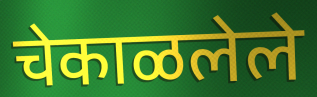
चेकाळलेले